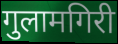
गुलामगिरी